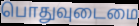
பொதுவுடைமை